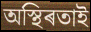
অস্থিৰতাই